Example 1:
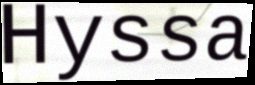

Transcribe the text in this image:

Hyssa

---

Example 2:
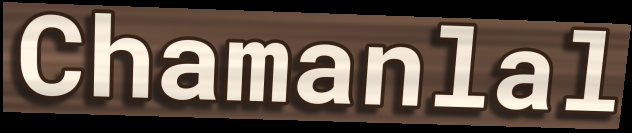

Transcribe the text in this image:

Chamanlal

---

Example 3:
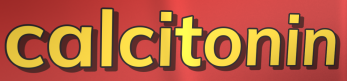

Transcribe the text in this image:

calcitonin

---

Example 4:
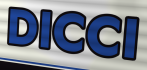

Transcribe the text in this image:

DICCI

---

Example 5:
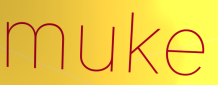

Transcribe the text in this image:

muke